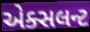
એક્સલન્ટ